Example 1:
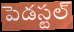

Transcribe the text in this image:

పెడస్టల్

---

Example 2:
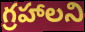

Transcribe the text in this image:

గ్రహాలని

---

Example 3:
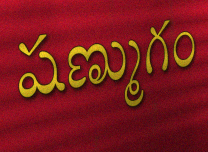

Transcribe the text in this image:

షణ్ముగం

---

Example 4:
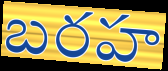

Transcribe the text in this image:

బరహ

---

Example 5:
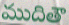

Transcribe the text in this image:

ముదితౌ